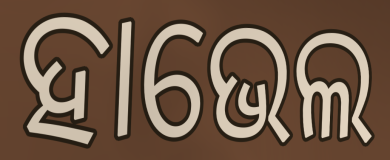
ହାଭେଲ